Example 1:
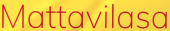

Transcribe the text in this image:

Mattavilasa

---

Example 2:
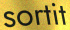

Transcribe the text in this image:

sortit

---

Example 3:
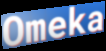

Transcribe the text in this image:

Omeka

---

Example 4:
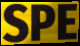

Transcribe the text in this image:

SPE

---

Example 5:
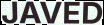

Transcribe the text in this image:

JAVED